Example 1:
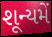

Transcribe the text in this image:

શૂન્યમેં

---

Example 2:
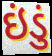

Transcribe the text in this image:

ઇંડું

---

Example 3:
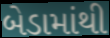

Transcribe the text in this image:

બેડામાંથી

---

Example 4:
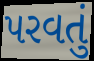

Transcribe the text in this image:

પરવતું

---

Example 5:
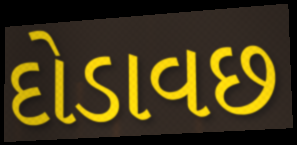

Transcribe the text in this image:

દોડાવછ